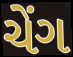
ચેંગ